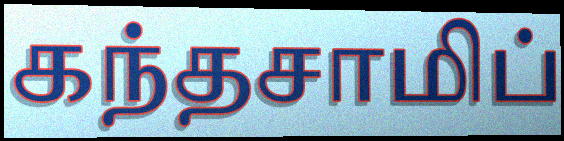
கந்தசாமிப்